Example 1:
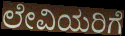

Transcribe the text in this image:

ಲೇವಿಯರಿಗೆ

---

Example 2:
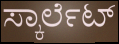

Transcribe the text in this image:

ಸ್ಕಾರ್ಲೆಟ್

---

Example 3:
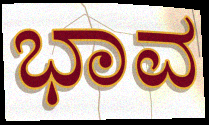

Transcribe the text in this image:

ಭಾವ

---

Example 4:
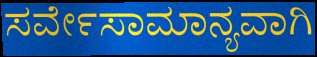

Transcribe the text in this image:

ಸರ್ವೇಸಾಮಾನ್ಯವಾಗಿ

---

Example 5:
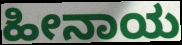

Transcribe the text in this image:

ಹೀನಾಯ